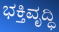
ಭಕ್ತಿವೃದ್ಧಿ